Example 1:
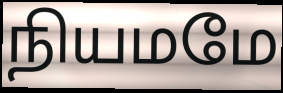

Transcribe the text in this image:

நியமமே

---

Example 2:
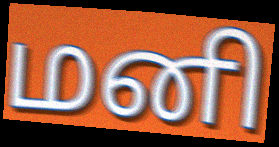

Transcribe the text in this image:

மனி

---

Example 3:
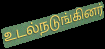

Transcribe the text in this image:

உடல்நடுங்கினர்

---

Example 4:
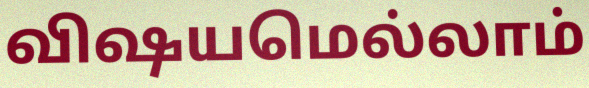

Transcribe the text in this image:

விஷயமெல்லாம்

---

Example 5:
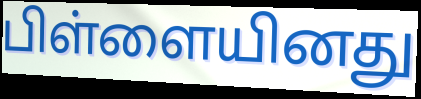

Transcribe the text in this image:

பிள்ளையினது